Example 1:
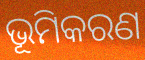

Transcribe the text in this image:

ଭୂମିକରଣ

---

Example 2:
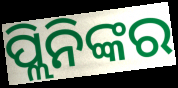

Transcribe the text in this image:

ପ୍ଲିନିଙ୍କର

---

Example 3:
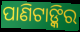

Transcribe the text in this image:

ପାଣିଟାଙ୍କିର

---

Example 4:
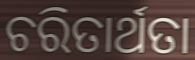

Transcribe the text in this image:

ଚରିତାର୍ଥତା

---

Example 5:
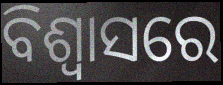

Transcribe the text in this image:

ବିଶ୍ୱାସରେ